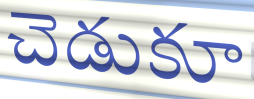
చెడుకూ